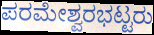
ಪರಮೇಶ್ವರಭಟ್ಟರು